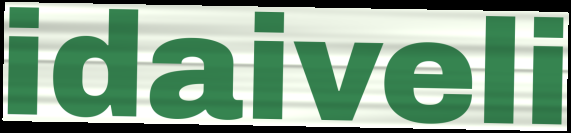
idaiveli